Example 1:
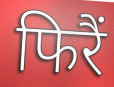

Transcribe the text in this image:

फिरैं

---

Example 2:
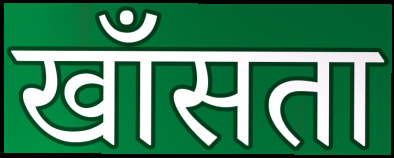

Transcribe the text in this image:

खाँसता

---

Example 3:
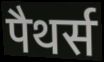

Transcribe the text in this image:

पैथर्स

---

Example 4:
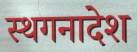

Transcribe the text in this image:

स्थगनादेश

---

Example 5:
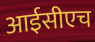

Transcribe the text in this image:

आईसीएच